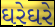
ઘરેઘરે